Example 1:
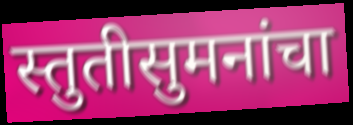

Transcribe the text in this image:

स्तुतीसुमनांचा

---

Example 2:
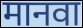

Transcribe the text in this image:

मानवा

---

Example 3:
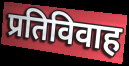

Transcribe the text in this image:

प्रतिविवाह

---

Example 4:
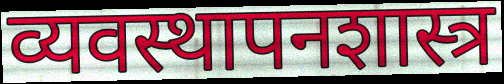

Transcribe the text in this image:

व्यवस्थापनशास्त्र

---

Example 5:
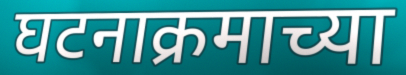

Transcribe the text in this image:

घटनाक्रमाच्या